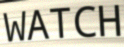
WATCH